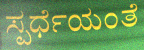
ಸ್ಪರ್ಧೆಯಂತೆ